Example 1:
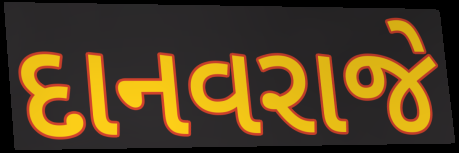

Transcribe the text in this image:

દાનવરાજે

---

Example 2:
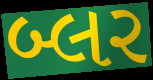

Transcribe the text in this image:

બ્લર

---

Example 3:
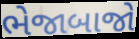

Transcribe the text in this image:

ભેજાબાજો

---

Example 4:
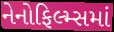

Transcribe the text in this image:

નેનોફિલ્મ્સમાં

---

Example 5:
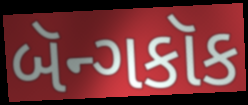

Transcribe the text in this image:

બૅન્ગકૉક